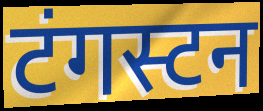
टंगस्टन